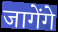
जागेंगे